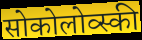
सोकोलोव्स्की